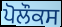
ਪੋਲੌਕਸ